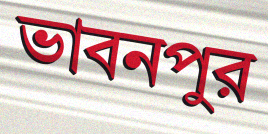
ভাবনপুর